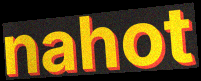
nahot